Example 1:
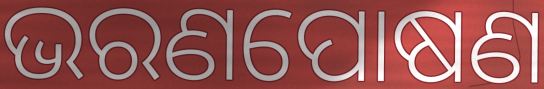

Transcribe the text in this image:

ଭରଣପୋଷଣ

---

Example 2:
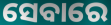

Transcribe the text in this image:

ସେବାରେ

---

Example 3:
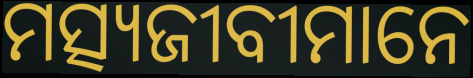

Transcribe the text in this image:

ମତ୍ସ୍ୟଜୀବୀମାନେ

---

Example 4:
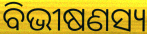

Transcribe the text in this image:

ବିଭୀଷଣସ୍ୟ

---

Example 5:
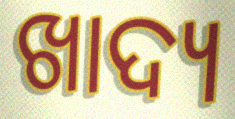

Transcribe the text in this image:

ଖାଦ୍ୟ